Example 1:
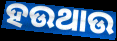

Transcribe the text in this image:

ହଉଥାଉ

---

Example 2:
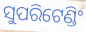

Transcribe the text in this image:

ସୁପରିଟେଣ୍ଡିଂ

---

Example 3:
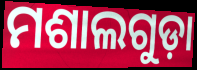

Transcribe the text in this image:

ମଶାଲଗୁଡ଼ା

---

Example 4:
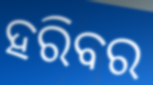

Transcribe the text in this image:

ହରିବର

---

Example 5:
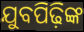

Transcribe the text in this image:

ଯୁବପିଢ଼ିଙ୍କ